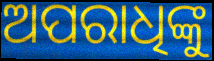
ଅପରାଧିଙ୍କୁ